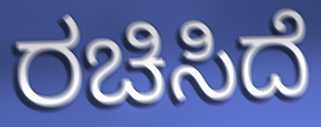
ರಚಿಸಿದೆ